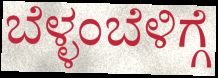
ಬೆಳ್ಳಂಬೆಳಿಗ್ಗೆ